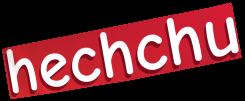
hechchu